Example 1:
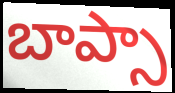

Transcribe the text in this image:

బాప్సా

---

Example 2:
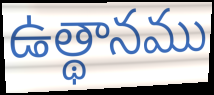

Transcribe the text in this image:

ఉత్థానము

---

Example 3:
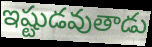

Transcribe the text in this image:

ఇష్టుడవుతాడు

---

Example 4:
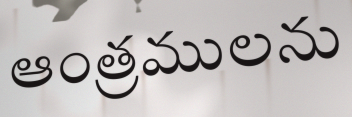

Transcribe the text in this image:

ఆంత్రములను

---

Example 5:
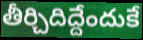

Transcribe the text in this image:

తీర్చిదిద్దేందుకే